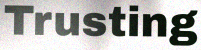
Trusting